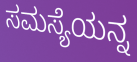
ಸಮಸ್ಯೆಯನ್ನ